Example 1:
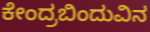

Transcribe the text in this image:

ಕೇಂದ್ರಬಿಂದುವಿನ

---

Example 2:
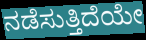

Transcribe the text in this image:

ನಡೆಸುತ್ತಿದೆಯೇ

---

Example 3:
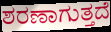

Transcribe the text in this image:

ಶರಣಾಗುತ್ತದೆ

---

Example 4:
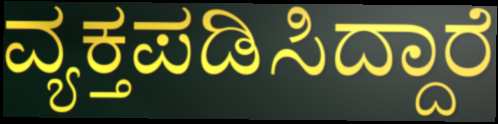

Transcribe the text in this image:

ವ್ಯಕ್ತಪಡಿಸಿದ್ದಾರೆ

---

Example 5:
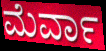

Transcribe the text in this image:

ಮೆರ್ವಾ